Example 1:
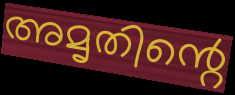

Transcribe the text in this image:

അമൃതിന്റെ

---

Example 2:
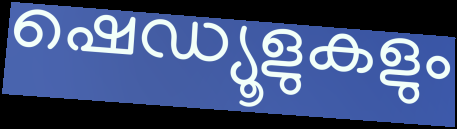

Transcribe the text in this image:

ഷെഡ്യൂളുകളും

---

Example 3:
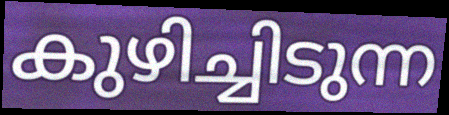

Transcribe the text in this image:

കുഴിച്ചിടുന്ന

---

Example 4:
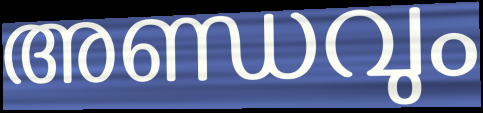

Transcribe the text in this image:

അണ്ഡവും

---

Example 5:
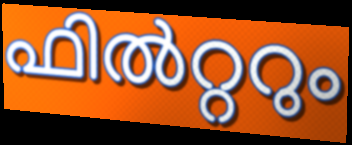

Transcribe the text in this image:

ഫിൽറ്ററും